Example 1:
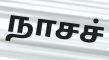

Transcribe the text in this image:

நாசச்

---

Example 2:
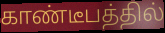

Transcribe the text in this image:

காண்டீபத்தில்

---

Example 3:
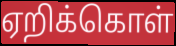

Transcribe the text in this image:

ஏறிக்கொள்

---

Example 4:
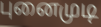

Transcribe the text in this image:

புனைமுடி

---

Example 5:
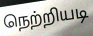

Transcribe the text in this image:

நெற்றியடி